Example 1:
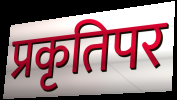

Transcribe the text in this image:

प्रकृतिपर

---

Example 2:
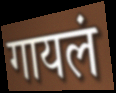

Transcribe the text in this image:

गायलं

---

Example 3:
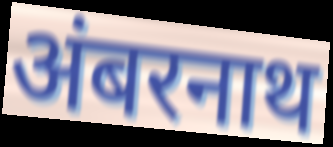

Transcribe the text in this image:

अंबरनाथ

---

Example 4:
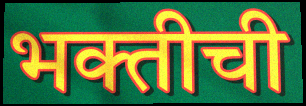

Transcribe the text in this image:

भक्‍तीची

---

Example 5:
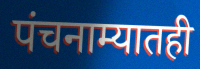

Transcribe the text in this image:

पंचनाम्यातही